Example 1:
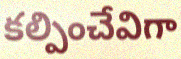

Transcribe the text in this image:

కల్పించేవిగా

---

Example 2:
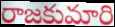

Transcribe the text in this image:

రాజకుమారి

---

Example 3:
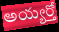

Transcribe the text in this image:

అయ్యర్తో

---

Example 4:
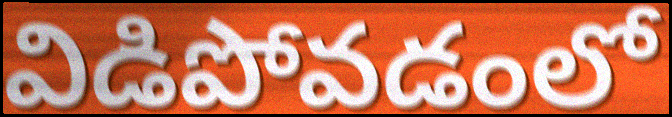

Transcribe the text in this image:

విడిపోవడంలో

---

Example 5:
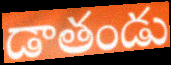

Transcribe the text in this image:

డాతండు